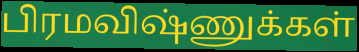
பிரமவிஷ்ணுக்கள்